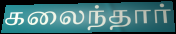
கலைந்தார்